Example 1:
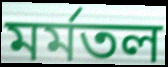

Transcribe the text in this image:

মর্মতল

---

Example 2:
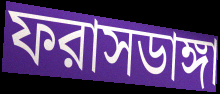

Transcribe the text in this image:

ফরাসডাঙ্গা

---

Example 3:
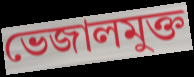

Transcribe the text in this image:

ভেজালমুক্ত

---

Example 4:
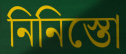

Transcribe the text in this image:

নিনিস্তো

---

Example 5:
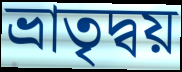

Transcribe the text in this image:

ভ্রাতৃদ্বয়